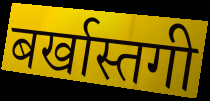
बर्खास्तगी